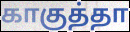
காகுத்தா